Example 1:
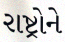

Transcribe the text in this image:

રાષ્ટ્રોને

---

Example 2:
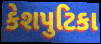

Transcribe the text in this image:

કેશપુટિકા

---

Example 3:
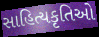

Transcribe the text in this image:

સાહિત્યકૃતિઓ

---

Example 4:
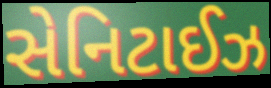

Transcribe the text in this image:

સેનિટાઈઝ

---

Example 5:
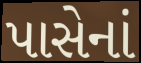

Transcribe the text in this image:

પાસેનાં